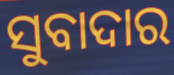
ସୁବାଦାର